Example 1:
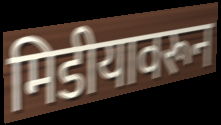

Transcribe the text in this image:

मिडीयावरून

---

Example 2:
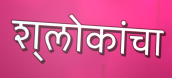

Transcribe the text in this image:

श्लोकांचा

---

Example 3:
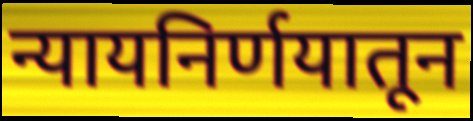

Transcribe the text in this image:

न्यायनिर्णयातून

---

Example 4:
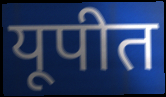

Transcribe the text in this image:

यूपीत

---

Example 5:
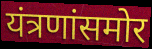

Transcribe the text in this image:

यंत्रणांसमोर